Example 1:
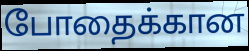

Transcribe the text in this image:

போதைக்கான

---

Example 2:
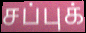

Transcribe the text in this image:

சப்புக்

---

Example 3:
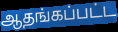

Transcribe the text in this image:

ஆதங்கப்பட்ட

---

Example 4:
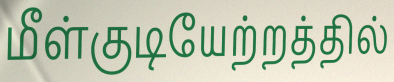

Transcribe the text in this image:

மீள்குடியேற்றத்தில்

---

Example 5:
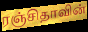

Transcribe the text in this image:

ரஞ்சிதாவின்